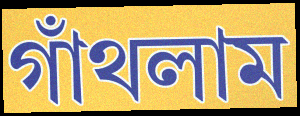
গাঁথলাম